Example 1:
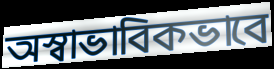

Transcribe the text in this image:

অস্বাভাবিকভাবে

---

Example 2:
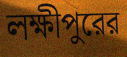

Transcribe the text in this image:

লক্ষীপুরের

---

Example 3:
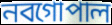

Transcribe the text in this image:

নবগোপাল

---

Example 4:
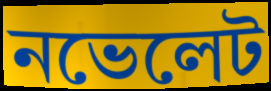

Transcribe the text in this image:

নভেলেট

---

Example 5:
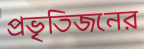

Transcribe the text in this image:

প্রভৃতিজনের